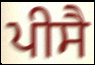
ਪੀਸੈ